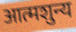
आत्मशुन्य